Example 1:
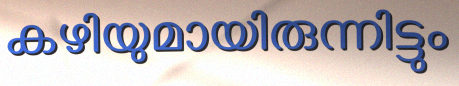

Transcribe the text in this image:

കഴിയുമായിരുന്നിട്ടും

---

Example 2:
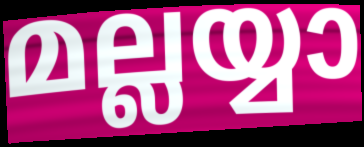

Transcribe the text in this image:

മല്ലയ്യാ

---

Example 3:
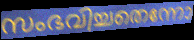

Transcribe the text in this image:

സംഭവിച്ചതെന്നോ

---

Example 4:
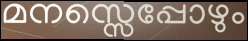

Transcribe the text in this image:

മനസ്സെപ്പോഴും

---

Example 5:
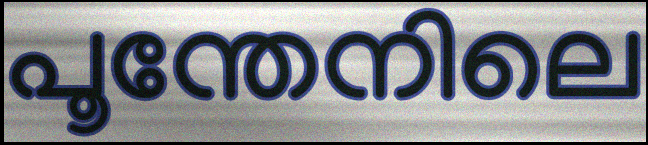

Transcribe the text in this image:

പൂന്തേനിലെ